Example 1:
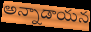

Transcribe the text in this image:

అన్నాడాయన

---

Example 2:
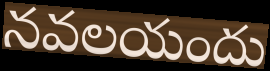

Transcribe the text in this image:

నవలయందు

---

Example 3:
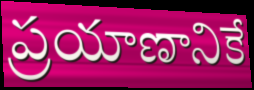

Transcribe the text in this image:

ప్రయాణానికే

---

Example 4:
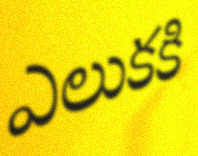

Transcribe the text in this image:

ఎలుకకి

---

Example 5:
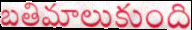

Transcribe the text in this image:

బతిమాలుకుంది